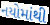
નયોમાંથી